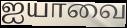
ஐயாவை